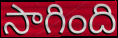
సాగింది